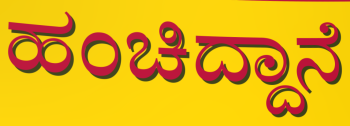
ಹಂಚಿದ್ದಾನೆ